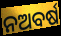
ନଅବର୍ଷ